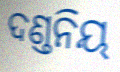
ଦଣ୍ଡନିୟ